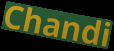
Chandi